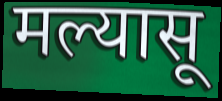
मल्यासू